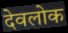
देवलोक